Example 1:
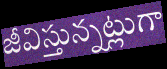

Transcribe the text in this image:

జీవిస్తున్నట్లుగా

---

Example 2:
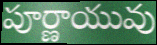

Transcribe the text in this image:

పూర్ణాయువు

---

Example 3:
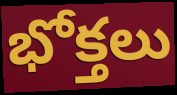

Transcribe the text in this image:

భోక్తలు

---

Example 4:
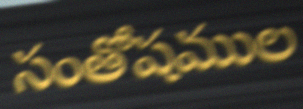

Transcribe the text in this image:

సంతోషముల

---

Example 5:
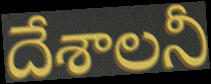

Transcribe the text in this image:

దేశాలనీ